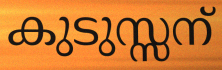
കുടുസ്സന്